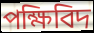
পক্ষিবিদ